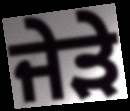
ਜੇੜੇ